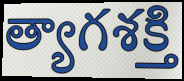
త్యాగశక్తి